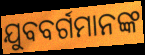
ଯୁବବର୍ଗମାନଙ୍କ